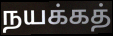
நயக்கத்